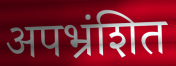
अपभ्रंशित